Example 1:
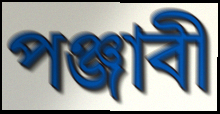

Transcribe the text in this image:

পঞ্জাবী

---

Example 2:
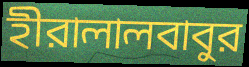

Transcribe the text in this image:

হীরালালবাবুর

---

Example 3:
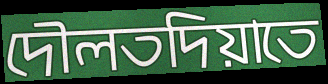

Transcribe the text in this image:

দৌলতদিয়াতে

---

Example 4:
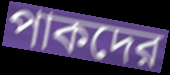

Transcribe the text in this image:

পাকদের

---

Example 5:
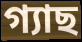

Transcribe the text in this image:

গ্যাছ